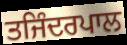
ਤਜਿੰਦਰਪਾਲ